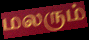
மலரும்